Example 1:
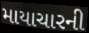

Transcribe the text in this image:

માયાચારની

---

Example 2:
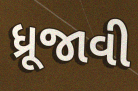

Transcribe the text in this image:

ધ્રૂજાવી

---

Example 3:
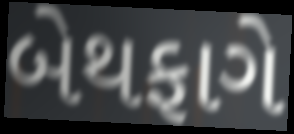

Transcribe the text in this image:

બેથફાગે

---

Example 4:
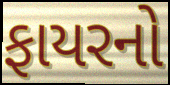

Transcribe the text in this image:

ફાયરનો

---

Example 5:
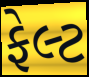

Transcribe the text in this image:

ફેલ્ટ